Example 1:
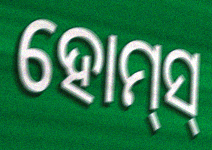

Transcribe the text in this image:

ହୋମ୍‌ସ୍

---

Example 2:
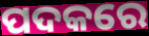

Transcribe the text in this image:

ପଦକରେ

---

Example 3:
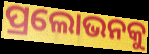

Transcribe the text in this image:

ପ୍ରଲୋଭନକୁ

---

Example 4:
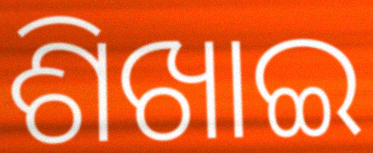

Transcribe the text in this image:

ଶିଖାଇ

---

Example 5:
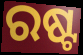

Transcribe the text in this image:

ରଷ୍ଟ